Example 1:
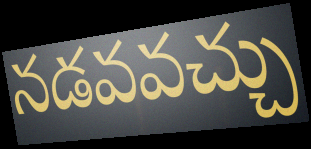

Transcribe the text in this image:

నడవవచ్చు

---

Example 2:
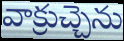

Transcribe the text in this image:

వాక్రుచ్చెను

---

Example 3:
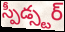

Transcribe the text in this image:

స్పీడ్స్టర్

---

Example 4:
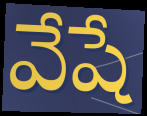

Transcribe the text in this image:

వేషే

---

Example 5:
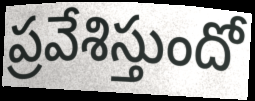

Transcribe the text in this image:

ప్రవేశిస్తుందో